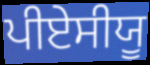
ਪੀਏਸੀਯੂ